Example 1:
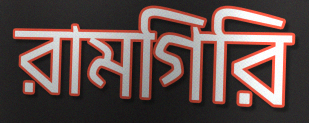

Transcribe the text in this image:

রামগিরি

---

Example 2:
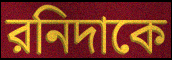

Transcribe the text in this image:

রনিদাকে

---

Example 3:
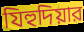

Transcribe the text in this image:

যিহুদিয়ার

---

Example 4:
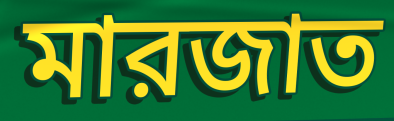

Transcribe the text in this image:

মারজাত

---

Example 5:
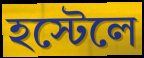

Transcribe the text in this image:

হস্টেলে